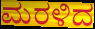
ಮರಳಿದ